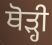
ਥੋਡ਼੍ਹੀ